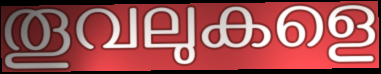
തൂവലുകളെ